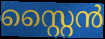
സ്റ്റൈൻ